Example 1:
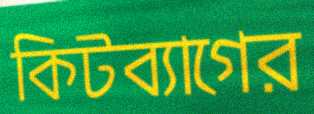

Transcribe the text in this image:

কিটব্যাগের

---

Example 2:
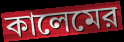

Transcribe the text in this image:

কালেমের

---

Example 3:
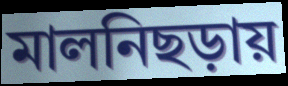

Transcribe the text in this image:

মালনিছড়ায়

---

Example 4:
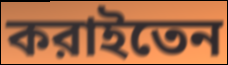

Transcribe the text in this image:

করাইতেন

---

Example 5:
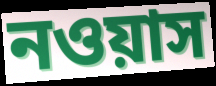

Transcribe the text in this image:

নওয়াস